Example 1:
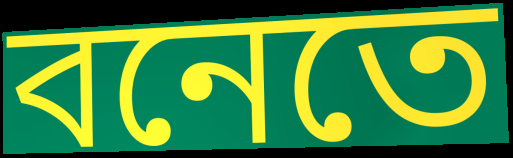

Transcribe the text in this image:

বনেতে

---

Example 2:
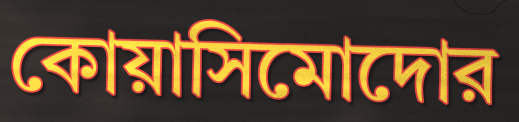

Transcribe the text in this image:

কোয়াসিমোদোর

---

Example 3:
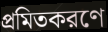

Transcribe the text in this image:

প্রমিতকরণে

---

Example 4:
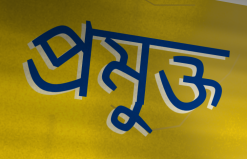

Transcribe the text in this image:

প্রমুক্ত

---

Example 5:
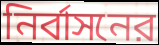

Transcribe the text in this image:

নির্বাসনের